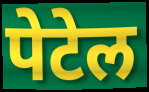
पेटेल